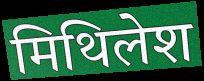
मिथिलेश